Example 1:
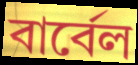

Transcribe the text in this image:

বার্বেল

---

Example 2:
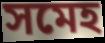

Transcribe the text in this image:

সমেহ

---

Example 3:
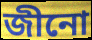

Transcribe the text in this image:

জীনো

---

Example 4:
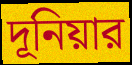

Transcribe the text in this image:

দূনিয়ার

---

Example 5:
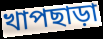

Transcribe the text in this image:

খাপছাড়া